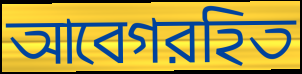
আবেগরহিত